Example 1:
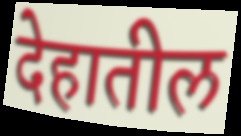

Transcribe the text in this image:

देहातील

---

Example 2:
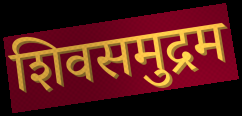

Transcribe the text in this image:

शिवसमुद्रम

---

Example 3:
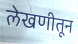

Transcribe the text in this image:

लेखणीतून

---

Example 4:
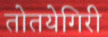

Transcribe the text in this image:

तोतयेगिरी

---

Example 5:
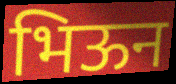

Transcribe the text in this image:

भिऊन